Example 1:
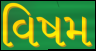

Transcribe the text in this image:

વિષમ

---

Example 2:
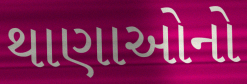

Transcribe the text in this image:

થાણાઓનો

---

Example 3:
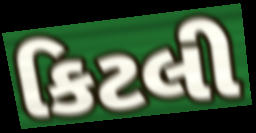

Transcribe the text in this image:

કિટલી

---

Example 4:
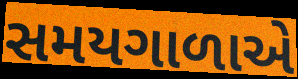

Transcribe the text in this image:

સમયગાળાએ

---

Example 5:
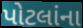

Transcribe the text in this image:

પોટલાંના